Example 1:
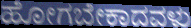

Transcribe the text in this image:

ಹೋಗಬೇಕಾದವಳು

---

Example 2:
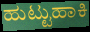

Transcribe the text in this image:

ಹುಟ್ಟುಹಾಕಿ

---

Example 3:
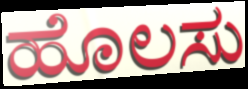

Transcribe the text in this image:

ಹೊಲಸು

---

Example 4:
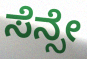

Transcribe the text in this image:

ಸೆನ್ಸೇ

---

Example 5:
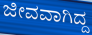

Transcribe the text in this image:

ಜೀವವಾಗಿದ್ದ